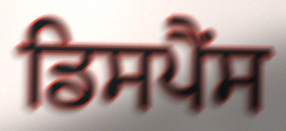
ਡਿਸਪੈਂਸ